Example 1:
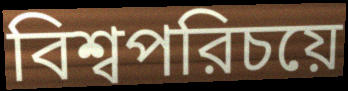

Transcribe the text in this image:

বিশ্বপরিচয়ে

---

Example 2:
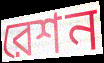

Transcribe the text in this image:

রেশন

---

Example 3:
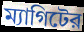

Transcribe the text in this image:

ম্যাগিটের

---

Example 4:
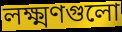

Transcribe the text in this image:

লক্ষ্মণগুলো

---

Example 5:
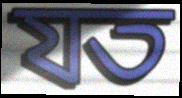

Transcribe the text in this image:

যত